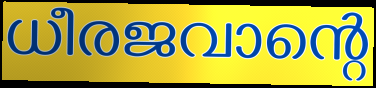
ധീരജവാന്റെ